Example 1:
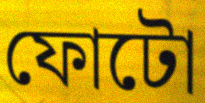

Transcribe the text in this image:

ফোটো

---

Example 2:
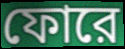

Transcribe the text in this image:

ফোরে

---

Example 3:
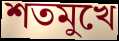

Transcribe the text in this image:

শতমুখে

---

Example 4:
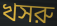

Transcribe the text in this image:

খসরু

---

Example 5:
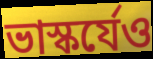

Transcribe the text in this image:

ভাস্কর্যেও